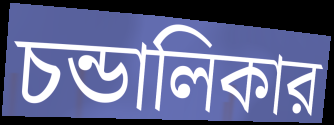
চন্ডালিকার